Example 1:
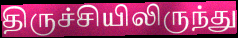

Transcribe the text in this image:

திருச்சியிலிருந்து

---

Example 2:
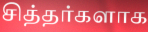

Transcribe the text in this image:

சித்தர்களாக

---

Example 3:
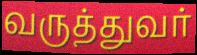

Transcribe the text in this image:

வருத்துவர்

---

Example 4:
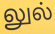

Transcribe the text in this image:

லுல்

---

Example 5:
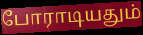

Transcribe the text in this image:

போராடியதும்